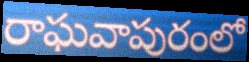
రాఘవాపురంలో